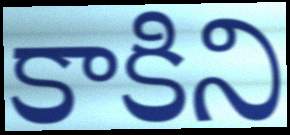
కాకిని